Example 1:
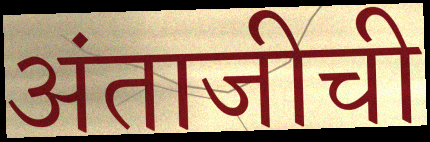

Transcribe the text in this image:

अंताजीची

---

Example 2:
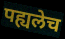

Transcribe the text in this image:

पह्यलेच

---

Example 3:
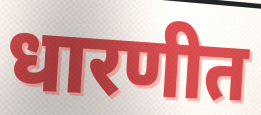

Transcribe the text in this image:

धारणीत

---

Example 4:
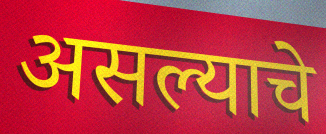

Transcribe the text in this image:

असल्‍याचे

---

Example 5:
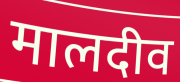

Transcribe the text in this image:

मालदीव